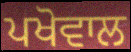
ਪਖੋਵਾਲ